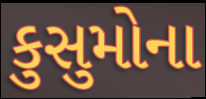
કુસુમોના